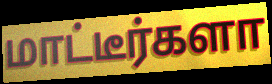
மாட்டீர்களா